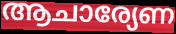
ആചാര്യേണ